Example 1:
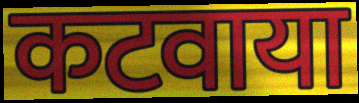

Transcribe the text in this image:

कटवाया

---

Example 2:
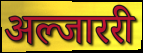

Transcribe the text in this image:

अल्जाररी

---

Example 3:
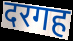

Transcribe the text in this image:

दरगह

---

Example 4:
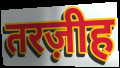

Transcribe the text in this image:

तरज़ीह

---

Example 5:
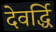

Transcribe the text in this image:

देवर्द्धि